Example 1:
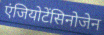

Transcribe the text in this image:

एंजियोटेंसिनोजेन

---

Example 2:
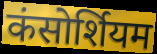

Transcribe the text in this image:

कंसोर्शियम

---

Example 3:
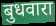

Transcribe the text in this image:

बुधवारा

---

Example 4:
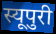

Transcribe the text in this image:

स्यूपुरी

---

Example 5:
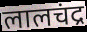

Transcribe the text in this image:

लालचंद्र